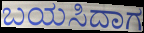
ಬಯಸಿದಾಗ